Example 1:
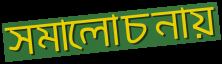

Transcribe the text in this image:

সমালোচনায়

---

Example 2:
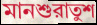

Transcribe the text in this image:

মানশুরাতুশ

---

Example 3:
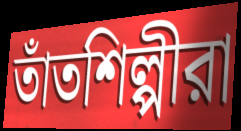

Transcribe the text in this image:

তাঁতশিল্পীরা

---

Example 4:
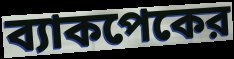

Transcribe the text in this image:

ব্যাকপেকের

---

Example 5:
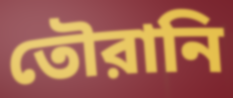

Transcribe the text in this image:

তৌরানি